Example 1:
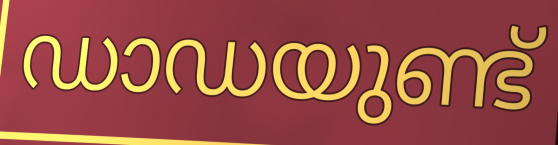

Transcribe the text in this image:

ഡാഡയുണ്ട്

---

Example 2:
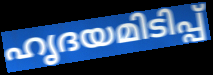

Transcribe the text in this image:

ഹൃദയമിടിപ്പ്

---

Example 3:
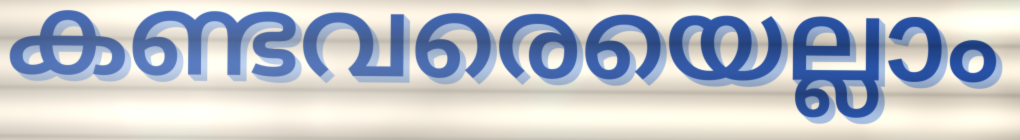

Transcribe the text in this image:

കണ്ടവരെയെല്ലാം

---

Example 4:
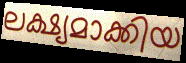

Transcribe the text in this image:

ലക്ഷ്യമാക്കിയ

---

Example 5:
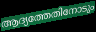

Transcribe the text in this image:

ആദ്യത്തേതിനോടും